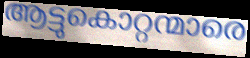
ആട്ടുകൊറ്റന്മാരെ